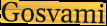
Gosvami